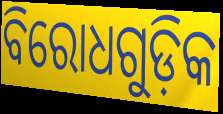
ବିରୋଧଗୁଡ଼ିକ